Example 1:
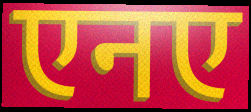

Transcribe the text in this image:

एनए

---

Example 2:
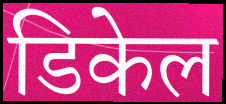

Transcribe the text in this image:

डिकेल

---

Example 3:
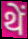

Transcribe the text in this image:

थें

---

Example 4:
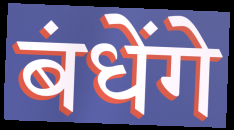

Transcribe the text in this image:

बंधेंगे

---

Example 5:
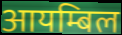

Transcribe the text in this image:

आयम्बिल